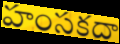
హంసకదా